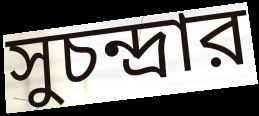
সুচন্দ্রার